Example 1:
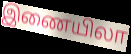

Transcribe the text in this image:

இணையிலா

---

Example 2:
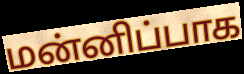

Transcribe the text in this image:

மன்னிப்பாக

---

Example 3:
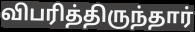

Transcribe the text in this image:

விபரித்திருந்தார்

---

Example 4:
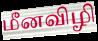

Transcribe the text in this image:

மீனவிழி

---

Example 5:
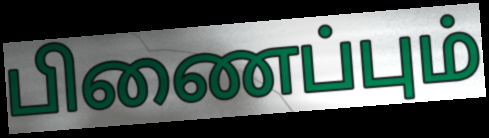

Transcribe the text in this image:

பிணைப்பும்